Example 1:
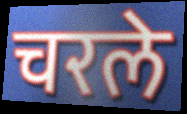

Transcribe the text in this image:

चरले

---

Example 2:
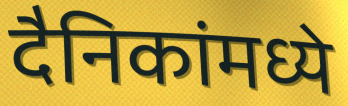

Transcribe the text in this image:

दैनिकांमध्ये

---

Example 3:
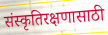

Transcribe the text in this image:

संस्कृतिरक्षणासाठी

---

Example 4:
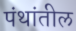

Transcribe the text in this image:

पंथांतील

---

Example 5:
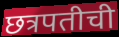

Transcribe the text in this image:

छत्रपतीची